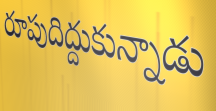
రూపుదిద్దుకున్నాడు